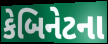
કેબિનેટના